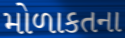
મોળાકતના